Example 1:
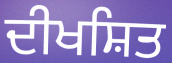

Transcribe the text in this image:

ਦੀਖਸ਼ਿਤ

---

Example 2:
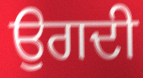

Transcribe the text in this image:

ਉਗਦੀ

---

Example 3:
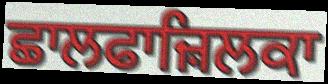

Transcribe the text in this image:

ਛਾਲਫਾਜ਼ਿਲਕਾ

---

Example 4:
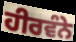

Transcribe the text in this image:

ਹੀਰਵੰਨੇ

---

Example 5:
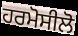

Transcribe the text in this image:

ਹਰਮੋਸੀਲੋ